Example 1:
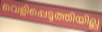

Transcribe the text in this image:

വെളിപ്പെടുത്തിയില്ല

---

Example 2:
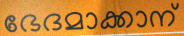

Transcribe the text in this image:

ഭേദമാക്കാന്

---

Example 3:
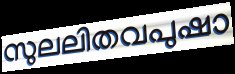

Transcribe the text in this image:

സുലലിതവപുഷാ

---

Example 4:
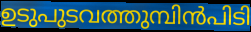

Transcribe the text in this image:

ഉടുപുടവത്തുമ്പിൻപിടി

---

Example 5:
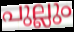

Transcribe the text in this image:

പുല്ലും